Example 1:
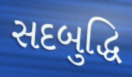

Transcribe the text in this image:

સદબુદ્ધિ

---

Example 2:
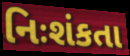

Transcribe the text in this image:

નિઃશંકતા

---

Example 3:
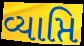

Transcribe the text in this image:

વ્યાપ્તિ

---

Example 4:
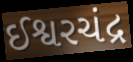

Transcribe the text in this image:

ઈશ્વરચંદ્ર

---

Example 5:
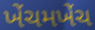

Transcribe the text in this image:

ખેંચમખેંચ